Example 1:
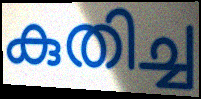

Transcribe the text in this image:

കുതിച്ച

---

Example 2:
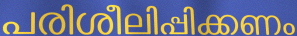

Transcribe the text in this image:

പരിശീലിപ്പിക്കണം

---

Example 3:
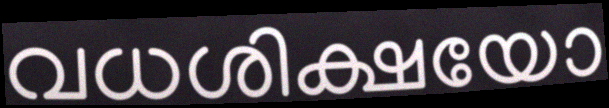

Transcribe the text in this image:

വധശിക്ഷയോ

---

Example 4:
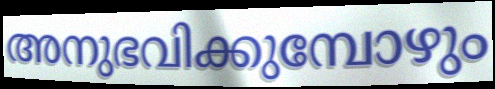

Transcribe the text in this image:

അനുഭവിക്കുമ്പോഴും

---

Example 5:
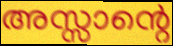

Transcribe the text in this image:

അസ്സാന്റെ